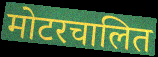
मोटरचालित